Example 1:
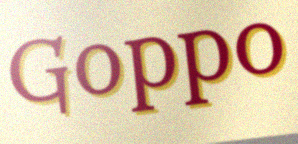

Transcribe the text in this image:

Goppo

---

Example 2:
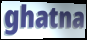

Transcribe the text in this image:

ghatna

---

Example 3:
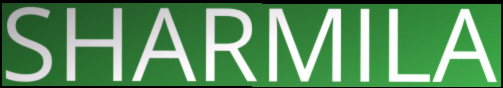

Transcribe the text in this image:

SHARMILA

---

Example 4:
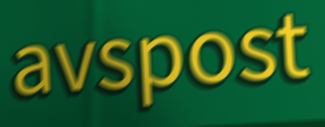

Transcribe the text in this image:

avspost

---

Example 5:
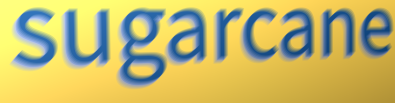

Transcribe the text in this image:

sugarcane